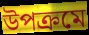
উপক্রমে